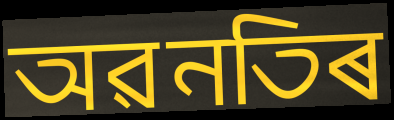
অৱনতিৰ